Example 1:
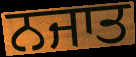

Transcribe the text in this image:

ਨਜਾਤ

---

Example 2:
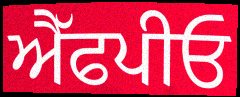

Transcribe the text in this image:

ਐੱਫਪੀਓ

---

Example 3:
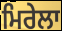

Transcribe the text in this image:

ਮਿਰੇਲਾ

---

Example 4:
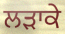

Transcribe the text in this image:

ਲੜਾਕੇ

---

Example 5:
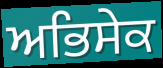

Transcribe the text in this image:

ਅਭਿਸੇਕ